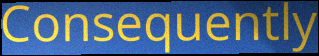
Consequently